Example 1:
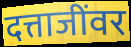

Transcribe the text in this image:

दत्ताजींवर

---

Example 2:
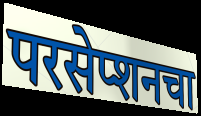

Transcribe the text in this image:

परसेप्शनचा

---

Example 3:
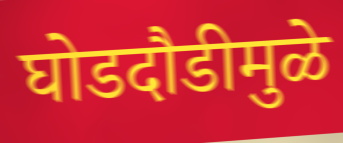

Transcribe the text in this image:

घोडदौडीमुळे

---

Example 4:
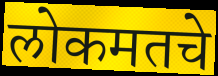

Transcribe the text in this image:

लोकमतचे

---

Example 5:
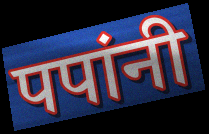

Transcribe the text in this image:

पपांनी